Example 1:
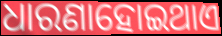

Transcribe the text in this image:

ଧାରଣାହୋଇଥାଏ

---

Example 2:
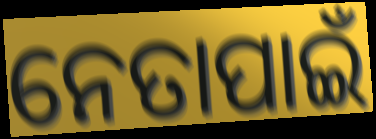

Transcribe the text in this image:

ନେତାପାଇଁ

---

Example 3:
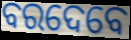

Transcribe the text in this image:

ବରଦେବେ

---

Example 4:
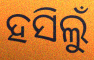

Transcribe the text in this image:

ହସିଲୁଁ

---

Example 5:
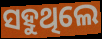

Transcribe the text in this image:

ସହୁଥିଲେ